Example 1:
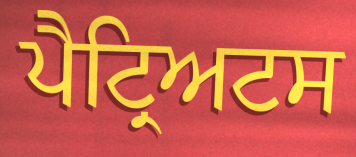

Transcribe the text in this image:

ਪੈਟ੍ਰਿਅਟਸ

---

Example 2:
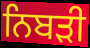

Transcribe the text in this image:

ਨਿਬੜੀ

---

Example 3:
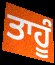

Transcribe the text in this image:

ਤਾਹੂੰ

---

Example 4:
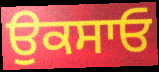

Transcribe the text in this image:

ਉਕਸਾਓ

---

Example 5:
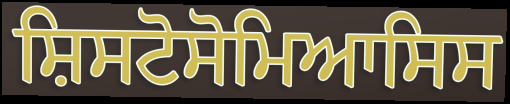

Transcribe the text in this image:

ਸ਼ਿਸਟੋਸੋਮਿਆਸਿਸ